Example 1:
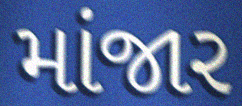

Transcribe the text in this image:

માંજાર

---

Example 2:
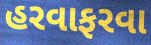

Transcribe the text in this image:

હરવાફરવા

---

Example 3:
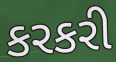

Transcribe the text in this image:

કરકરી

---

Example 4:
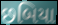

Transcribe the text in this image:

છબિયા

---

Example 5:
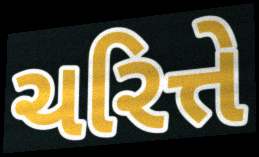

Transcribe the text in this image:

ચરિત્તે